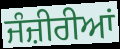
ਜੰਜ਼ੀਰੀਆਂ